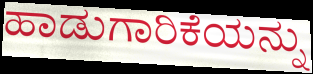
ಹಾಡುಗಾರಿಕೆಯನ್ನು